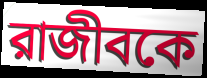
রাজীবকে